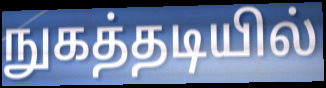
நுகத்தடியில்